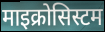
माइक्रोसिस्टम